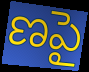
ణపై